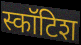
स्कॉटिश